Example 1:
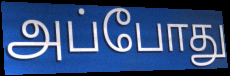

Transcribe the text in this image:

அப்போது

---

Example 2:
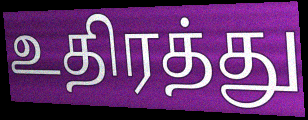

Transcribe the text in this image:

உதிரத்து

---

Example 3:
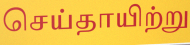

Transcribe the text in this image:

செய்தாயிற்று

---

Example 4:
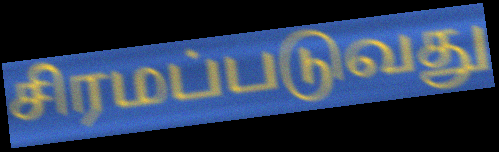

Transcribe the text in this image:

சிரமப்படுவது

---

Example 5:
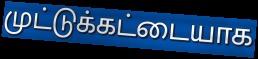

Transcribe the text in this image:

முட்டுக்கட்டையாக